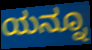
ಯನ್ನೂ